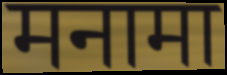
मनामा